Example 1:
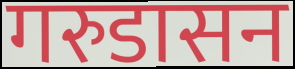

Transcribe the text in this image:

गरुडासन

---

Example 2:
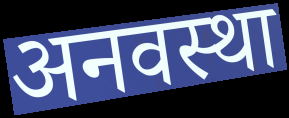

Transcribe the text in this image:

अनवस्था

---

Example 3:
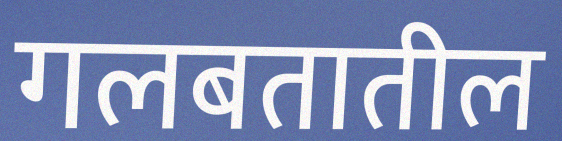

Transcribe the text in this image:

गलबतातील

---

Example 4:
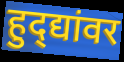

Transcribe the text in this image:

हुद्द्यांवर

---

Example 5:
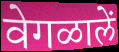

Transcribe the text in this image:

वेगळालें